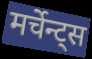
मर्चेन्ट्स